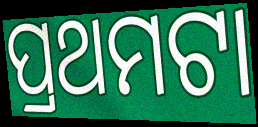
ପ୍ରଥମଟା